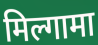
मिल्गामा